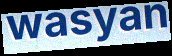
wasyan